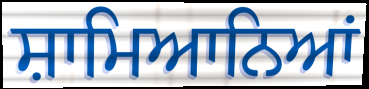
ਸ਼ਾਮਿਆਨਿਆਂ